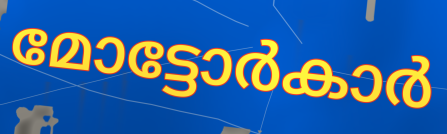
മോട്ടോർകാർ